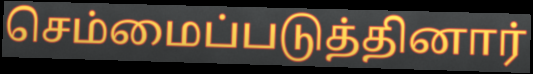
செம்மைப்படுத்தினார்